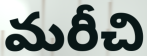
మరీచి